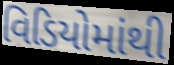
વિડિયોમાંથી